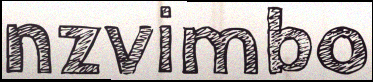
nzvimbo